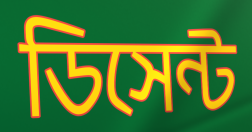
ডিসেন্ট